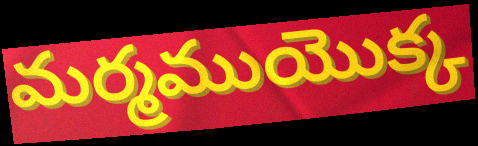
మర్మముయొక్క